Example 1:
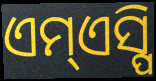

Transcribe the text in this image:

ଏମ୍ଏସ୍ପି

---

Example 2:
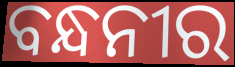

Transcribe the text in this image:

ବନ୍ଧନୀର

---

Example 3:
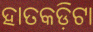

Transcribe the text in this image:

ହାତକଡ଼ିଟା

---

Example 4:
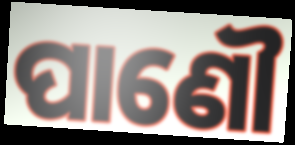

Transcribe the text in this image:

ପାଣୌ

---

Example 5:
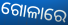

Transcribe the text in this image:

ଗୋଳାରେ